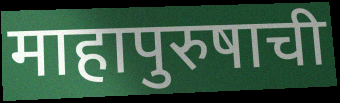
माहापुरुषाची